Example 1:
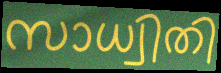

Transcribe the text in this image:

സാധ്വിതി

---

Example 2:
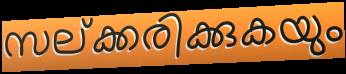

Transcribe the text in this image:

സല്ക്കരിക്കുകയും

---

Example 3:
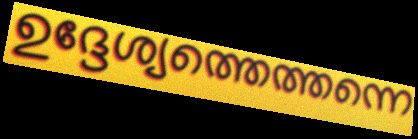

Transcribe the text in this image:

ഉദ്ദേശ്യത്തെത്തന്നെ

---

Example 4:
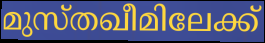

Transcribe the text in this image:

മുസ്തഖീമിലേക്ക്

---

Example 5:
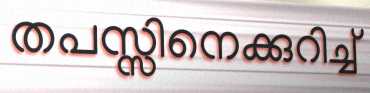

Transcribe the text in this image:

തപസ്സിനെക്കുറിച്ച്